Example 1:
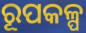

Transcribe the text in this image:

ରୂପକଳ୍ପ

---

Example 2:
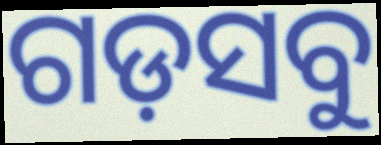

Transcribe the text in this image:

ଗଡ଼ସବୁ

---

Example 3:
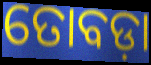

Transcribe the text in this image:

ତୋବଡ଼ା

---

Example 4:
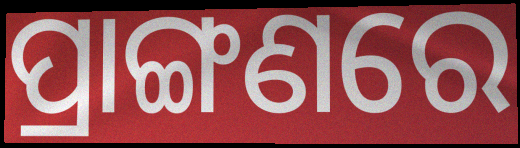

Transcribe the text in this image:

ପ୍ରାଙ୍ଗଣରେ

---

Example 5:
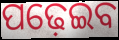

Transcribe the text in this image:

ପଢ଼େଇବ